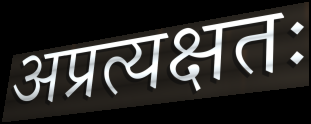
अप्रत्यक्षतः